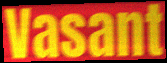
Vasant